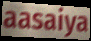
aasaiya